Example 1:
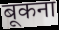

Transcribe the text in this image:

बूकना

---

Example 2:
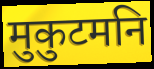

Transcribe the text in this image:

मुकुटमनि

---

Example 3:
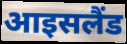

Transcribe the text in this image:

आइसलैंड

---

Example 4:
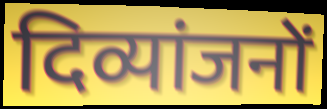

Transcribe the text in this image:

दिव्यांजनों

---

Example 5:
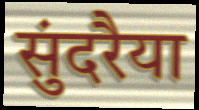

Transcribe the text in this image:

सुंदरैया